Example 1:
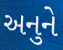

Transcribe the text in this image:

અનુને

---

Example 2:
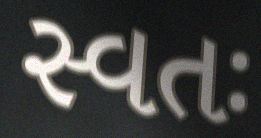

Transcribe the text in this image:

સ્વતઃ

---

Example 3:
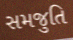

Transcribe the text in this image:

સમજુતિ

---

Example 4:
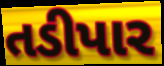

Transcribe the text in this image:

તડીપાર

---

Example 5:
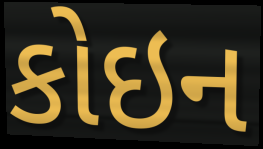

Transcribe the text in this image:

કોઇન